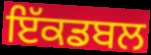
ਇੱਕਡਬਲ